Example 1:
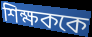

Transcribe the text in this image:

শিক্ষককে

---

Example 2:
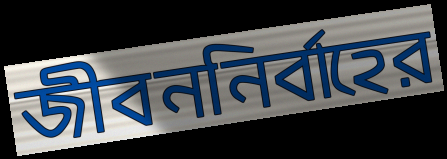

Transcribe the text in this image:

জীবননির্বাহের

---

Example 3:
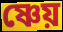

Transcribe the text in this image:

ষ্ণেয়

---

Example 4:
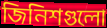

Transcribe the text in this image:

জিনিশগুলো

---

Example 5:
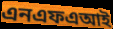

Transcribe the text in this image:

এনএফএআই